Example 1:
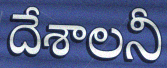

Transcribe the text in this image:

దేశాలనీ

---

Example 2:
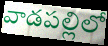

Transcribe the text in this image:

వాడపల్లిలో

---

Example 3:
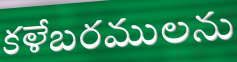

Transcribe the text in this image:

కళేబరములను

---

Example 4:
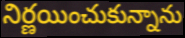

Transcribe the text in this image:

నిర్ణయించుకున్నాను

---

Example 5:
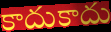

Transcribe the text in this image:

కాదుకాదు